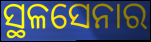
ସ୍ଥଳସେନାର